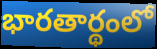
భారతార్థంలో